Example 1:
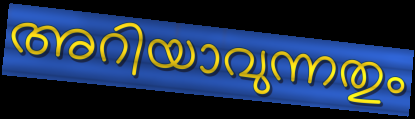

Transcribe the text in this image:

അറിയാവുന്നതും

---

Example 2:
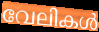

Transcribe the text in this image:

വേലികൾ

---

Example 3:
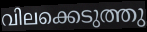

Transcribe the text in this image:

വിലക്കെടുത്തു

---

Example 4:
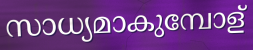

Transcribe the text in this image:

സാധ്യമാകുമ്പോള്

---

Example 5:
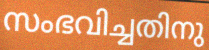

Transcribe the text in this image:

സംഭവിച്ചതിനു